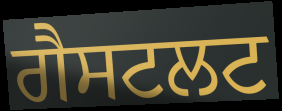
ਗੈਸਟਲਟ